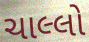
ચાલ્લો